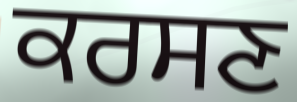
ਕਰਸਣ